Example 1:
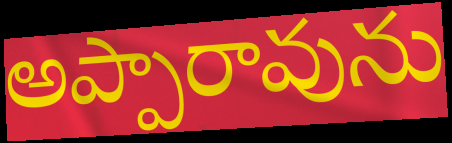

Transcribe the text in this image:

అప్పారావును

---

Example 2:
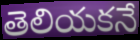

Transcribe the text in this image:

తెలియకనే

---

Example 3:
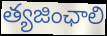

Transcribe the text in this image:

త్యజింఛాలి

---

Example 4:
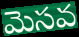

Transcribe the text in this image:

మెసవ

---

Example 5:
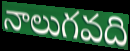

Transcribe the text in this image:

నాలుగవది